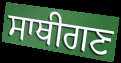
ਸਾਥੀਗਣ